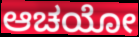
ಆಚಯೋ